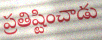
ప్రతిష్టించాడు